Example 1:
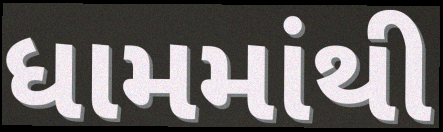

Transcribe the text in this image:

ધામમાંથી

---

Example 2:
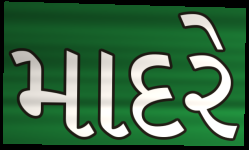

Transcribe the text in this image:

માદરે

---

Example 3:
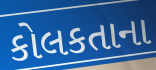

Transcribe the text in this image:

કોલકતાના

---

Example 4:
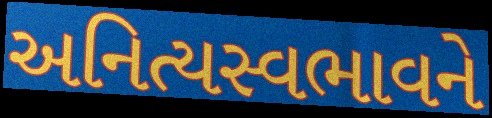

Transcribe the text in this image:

અનિત્યસ્વભાવને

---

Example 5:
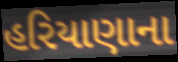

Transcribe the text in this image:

હરિયાણાના